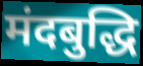
मंदबुद्धि